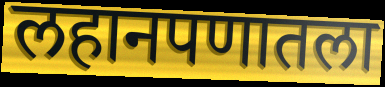
लहानपणातला